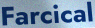
Farcical